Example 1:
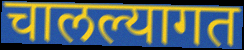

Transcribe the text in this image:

चालल्यागत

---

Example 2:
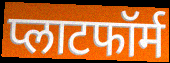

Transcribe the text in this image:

प्लाटफॉर्म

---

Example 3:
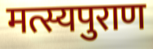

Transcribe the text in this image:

मत्स्यपुराण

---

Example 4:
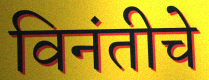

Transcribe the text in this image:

विनंतीचे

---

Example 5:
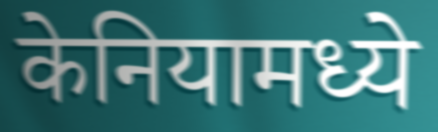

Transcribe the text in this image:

केनियामध्ये